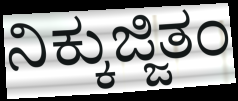
ನಿಕ್ಕುಜ್ಜಿತಂ